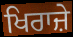
ਖਿਰਾਜ਼ੇ